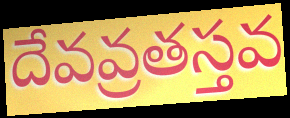
దేవవ్రతస్తవ